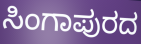
ಸಿಂಗಾಪುರದ